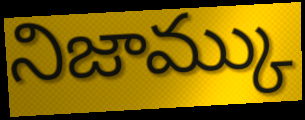
నిజామ్కు